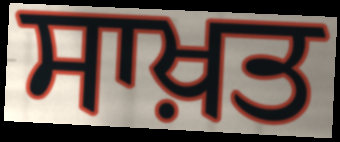
ਸਾਖ਼ਤ